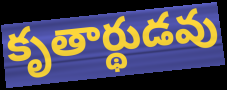
కృతార్థుడవు